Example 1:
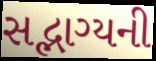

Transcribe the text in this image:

સદ્ભાગ્યની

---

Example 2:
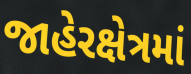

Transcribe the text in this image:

જાહેરક્ષેત્રમાં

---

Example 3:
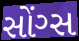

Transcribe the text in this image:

સોંગ્સ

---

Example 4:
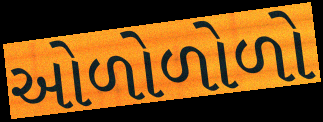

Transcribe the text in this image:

ઓળોળોળો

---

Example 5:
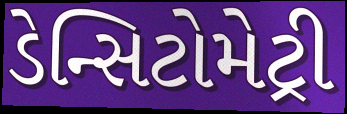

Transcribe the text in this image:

ડેન્સિટોમેટ્રી